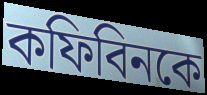
কফিবিনকে